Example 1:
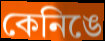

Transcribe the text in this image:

কেনিঙে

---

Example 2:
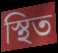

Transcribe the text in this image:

স্থিত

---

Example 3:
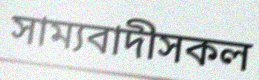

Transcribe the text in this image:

সাম্যবাদীসকল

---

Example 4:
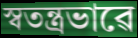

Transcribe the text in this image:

স্বতন্ত্ৰভাৱে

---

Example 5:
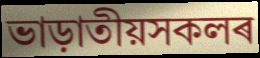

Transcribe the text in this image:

ভাড়াতীয়সকলৰ